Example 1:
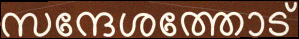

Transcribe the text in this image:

സന്ദേശത്തോട്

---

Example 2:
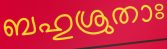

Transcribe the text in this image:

ബഹുശ്രുതാഃ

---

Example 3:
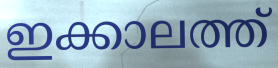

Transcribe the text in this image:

ഇക്കാലത്ത്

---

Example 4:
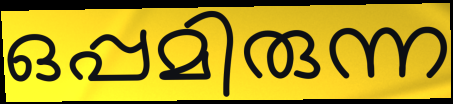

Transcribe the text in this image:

ഒപ്പമിരുന്ന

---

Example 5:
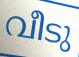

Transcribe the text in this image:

വീടു